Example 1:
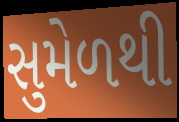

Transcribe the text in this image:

સુમેળથી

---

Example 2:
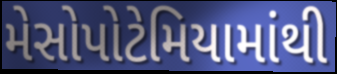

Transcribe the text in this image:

મેસોપોટેમિયામાંથી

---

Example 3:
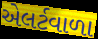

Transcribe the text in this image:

એલર્ટવાળા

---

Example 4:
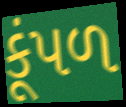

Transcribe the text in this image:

કૂંપળ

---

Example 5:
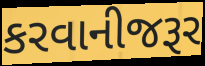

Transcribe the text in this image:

કરવાનીજરૂર